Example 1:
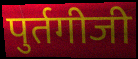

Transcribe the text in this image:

पुर्तगीजी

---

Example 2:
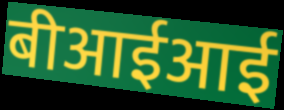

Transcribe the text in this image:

बीआईआई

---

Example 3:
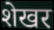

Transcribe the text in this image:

शेखर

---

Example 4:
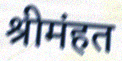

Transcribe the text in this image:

श्रीमंहत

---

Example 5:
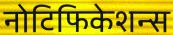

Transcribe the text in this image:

नोटिफिकेशन्स